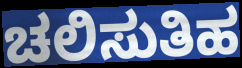
ಚಲಿಸುತಿಹ